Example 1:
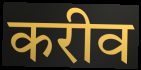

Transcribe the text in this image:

करीव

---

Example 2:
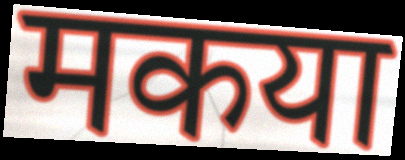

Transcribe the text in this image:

मकया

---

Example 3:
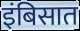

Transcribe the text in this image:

इंबिसात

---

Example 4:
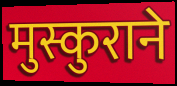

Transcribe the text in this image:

मुस्‍कुराने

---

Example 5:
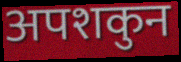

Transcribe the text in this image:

अपशकुन